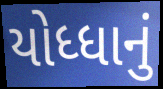
યોધ્ધાનું